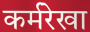
कर्मरेखा